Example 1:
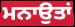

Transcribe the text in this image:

ਮਨਾਉਤਾਂ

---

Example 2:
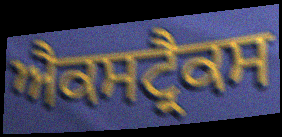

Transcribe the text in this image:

ਐਕਸਟ੍ਰੈਕਸ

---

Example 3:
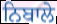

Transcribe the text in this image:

ਨਿਬਾਲੇ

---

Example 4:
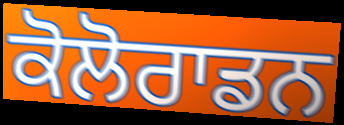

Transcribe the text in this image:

ਕੋਲੋਰਾਡਨ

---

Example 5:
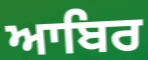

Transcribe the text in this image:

ਆਬਿਰ